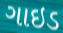
ગાઇડ